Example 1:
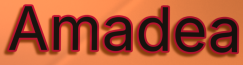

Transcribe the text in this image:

Amadea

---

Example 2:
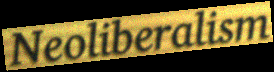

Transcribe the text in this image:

Neoliberalism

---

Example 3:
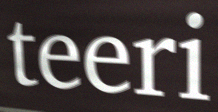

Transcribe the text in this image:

teeri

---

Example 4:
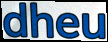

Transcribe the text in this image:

dheu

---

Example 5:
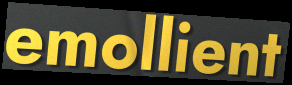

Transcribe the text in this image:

emollient